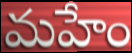
మహేం